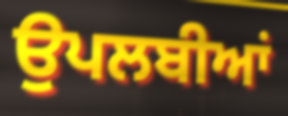
ਉਪਲਬੀਆਂ